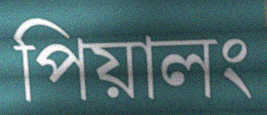
পিয়ালং